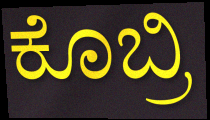
ಕೊಬ್ರಿ